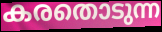
കരതൊടുന്ന